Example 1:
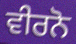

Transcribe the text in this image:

ਵੀਰਨੋ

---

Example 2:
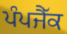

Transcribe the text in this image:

ਪੰਪਜੈੱਕ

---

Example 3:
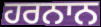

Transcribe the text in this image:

ਹਰਨਾਨ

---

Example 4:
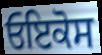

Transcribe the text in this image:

ਓਇਕੋਸ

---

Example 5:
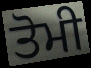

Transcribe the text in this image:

ਤੋਮੀ